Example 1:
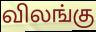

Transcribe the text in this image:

விலங்கு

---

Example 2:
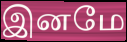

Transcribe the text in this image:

இனமே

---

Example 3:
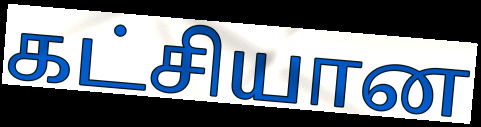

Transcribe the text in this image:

கட்சியான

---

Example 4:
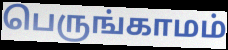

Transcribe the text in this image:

பெருங்காமம்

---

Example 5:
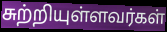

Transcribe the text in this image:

சுற்றியுள்ளவர்கள்